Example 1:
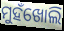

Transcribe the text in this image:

ମୁହଁଖୋଲି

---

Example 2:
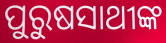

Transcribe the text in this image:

ପୁରୁଷସାଥୀଙ୍କ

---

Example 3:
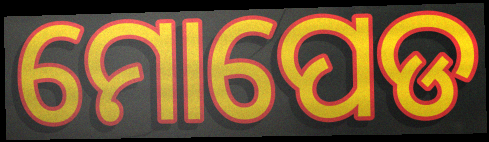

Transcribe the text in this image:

ମୋପେଡ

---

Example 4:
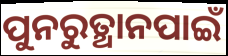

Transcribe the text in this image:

ପୁନରୁତ୍ଥାନପାଇଁ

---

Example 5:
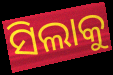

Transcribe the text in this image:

ସିଲାକୁ